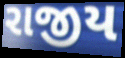
રાજીય